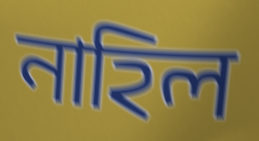
নাহিল